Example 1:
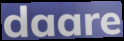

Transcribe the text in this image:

daare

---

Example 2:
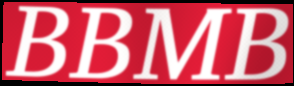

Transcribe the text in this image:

BBMB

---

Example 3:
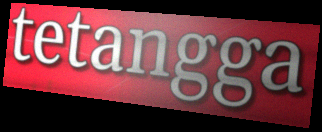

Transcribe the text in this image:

tetangga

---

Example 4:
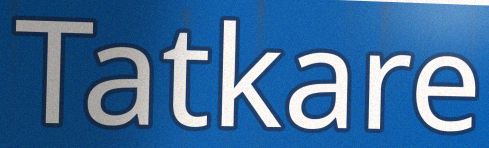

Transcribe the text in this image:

Tatkare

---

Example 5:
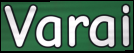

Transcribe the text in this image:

Varai